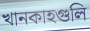
খানকাহগুলি